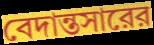
বেদান্তসারের